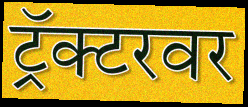
ट्रॅक्टरवर